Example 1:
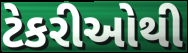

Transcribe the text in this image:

ટેકરીઓથી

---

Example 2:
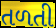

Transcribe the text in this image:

તળતી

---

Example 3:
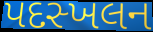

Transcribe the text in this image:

પદસ્ખલન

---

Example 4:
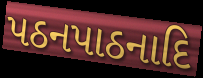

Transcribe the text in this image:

પઠનપાઠનાદિ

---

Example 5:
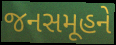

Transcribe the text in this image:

જનસમૂહને